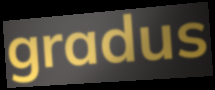
gradus